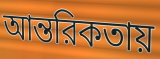
আন্তরিকতায়